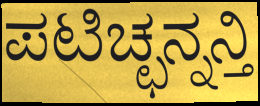
ಪಟಿಚ್ಛನ್ನನ್ತಿ